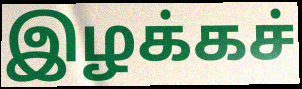
இழக்கச்